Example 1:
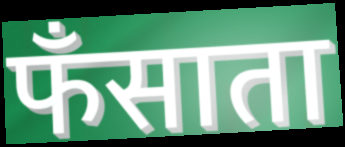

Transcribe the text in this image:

फँसाता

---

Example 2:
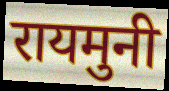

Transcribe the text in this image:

रायमुनी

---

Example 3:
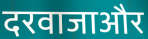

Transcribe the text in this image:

दरवाजाऔर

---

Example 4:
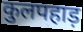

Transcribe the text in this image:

कुलपहाड़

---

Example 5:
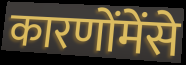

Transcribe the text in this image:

कारणोंमेंसे